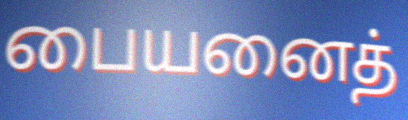
பையனைத்